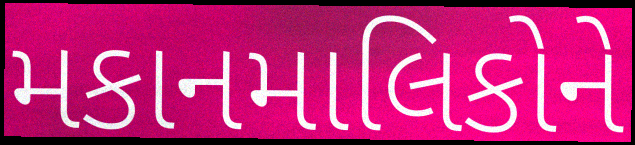
મકાનમાલિકોને